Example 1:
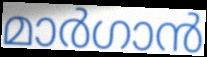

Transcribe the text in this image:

മാർഗാൻ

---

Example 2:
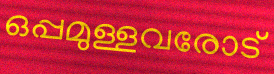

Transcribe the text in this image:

ഒപ്പമുള്ളവരോട്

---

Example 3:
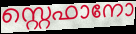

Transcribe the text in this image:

സ്റ്റെഫാനോ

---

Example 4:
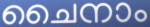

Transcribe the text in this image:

ചൈനാം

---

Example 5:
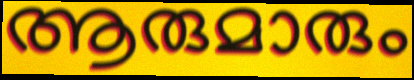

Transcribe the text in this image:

ആരുമാരും